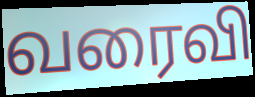
வரைவி